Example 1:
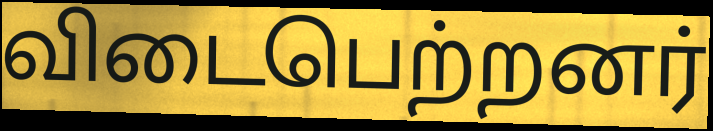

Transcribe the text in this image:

விடைபெற்றனர்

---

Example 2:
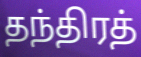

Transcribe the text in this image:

தந்திரத்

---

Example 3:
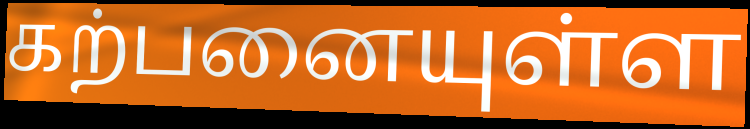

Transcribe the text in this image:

கற்பனையுள்ள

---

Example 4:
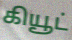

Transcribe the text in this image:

கியூட்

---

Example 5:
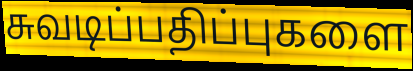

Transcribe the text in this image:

சுவடிப்பதிப்புகளை